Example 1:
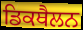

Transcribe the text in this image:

ਡਿਕਥੈਲਨ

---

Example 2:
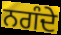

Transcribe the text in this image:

ਨਗੰਦੇ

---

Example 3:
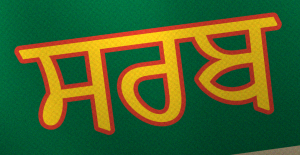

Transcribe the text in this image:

ਸਰਬ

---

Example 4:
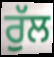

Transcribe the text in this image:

ਰੁੱਲ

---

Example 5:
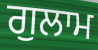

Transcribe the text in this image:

ਗੁਲਾਮ